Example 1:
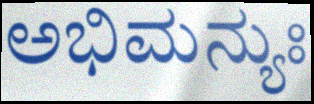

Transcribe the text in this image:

ಅಭಿಮನ್ಯುಃ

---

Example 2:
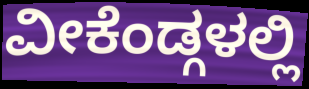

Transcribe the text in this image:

ವೀಕೆಂಡ್ಗಳಲ್ಲಿ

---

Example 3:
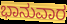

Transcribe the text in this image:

ಭಾನುವಾರ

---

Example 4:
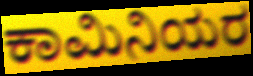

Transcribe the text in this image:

ಕಾಮಿನಿಯರ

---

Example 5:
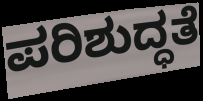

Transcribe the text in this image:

ಪರಿಶುದ್ಧತೆ